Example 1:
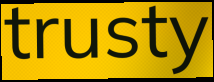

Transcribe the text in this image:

trusty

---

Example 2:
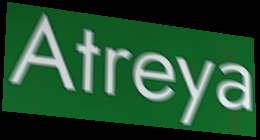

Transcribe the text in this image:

Atreya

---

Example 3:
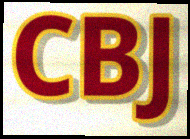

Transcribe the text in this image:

CBJ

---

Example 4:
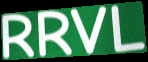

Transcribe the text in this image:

RRVL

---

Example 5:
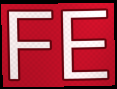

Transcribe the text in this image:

FE